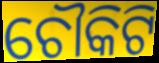
ଚୌକିଟି